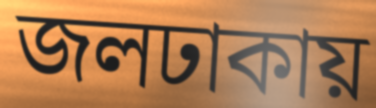
জলঢাকায়